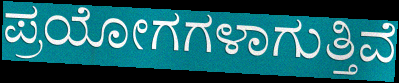
ಪ್ರಯೋಗಗಳಾಗುತ್ತಿವೆ